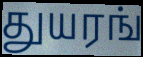
துயரங்